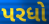
પરધો